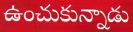
ఉంచుకున్నాడు